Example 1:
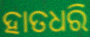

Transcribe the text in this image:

ହାତଧରି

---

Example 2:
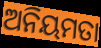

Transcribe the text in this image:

ଅନିୟମତା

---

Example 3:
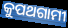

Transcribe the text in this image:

କୁପଥଗାମୀ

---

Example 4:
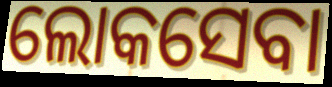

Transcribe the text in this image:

ଲୋକସେବା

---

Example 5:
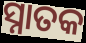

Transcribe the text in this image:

ସ୍ନାତକ